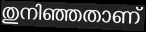
തുനിഞ്ഞതാണ്